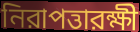
নিরাপত্তারক্ষী